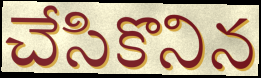
చేసికొనిన